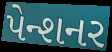
પેન્શનર